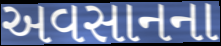
અવસાનના